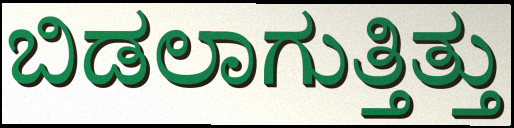
ಬಿಡಲಾಗುತ್ತಿತ್ತು